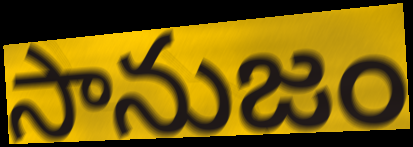
సానుజం